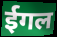
ईगल